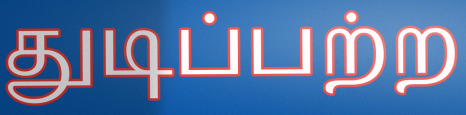
துடிப்பற்ற